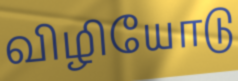
விழியோடு